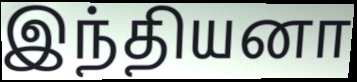
இந்தியனா